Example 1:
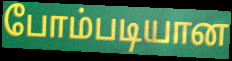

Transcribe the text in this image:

போம்படியான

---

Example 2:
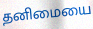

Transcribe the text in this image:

தனிமையை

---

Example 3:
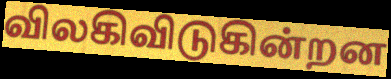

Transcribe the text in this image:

விலகிவிடுகின்றன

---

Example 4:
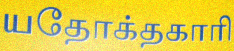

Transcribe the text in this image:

யதோக்தகாரி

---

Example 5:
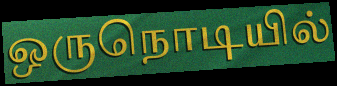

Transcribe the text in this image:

ஒருநொடியில்